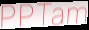
PPTam